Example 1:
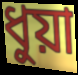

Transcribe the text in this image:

ধুয়া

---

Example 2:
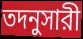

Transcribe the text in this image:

তদনুসারী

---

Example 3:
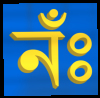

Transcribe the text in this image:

নঁঃ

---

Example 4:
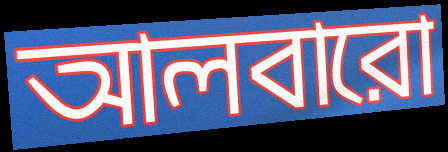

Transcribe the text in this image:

আলবারো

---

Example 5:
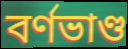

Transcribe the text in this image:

বর্ণভাণ্ড